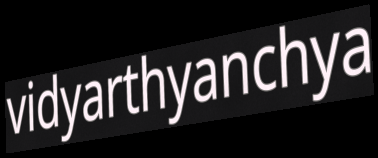
vidyarthyanchya